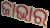
ଜାଭାର